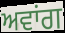
ਅਵਾਂਗ